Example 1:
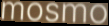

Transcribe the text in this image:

mosmo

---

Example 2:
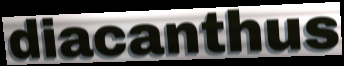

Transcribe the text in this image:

diacanthus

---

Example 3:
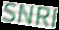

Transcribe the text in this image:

SNRI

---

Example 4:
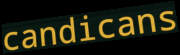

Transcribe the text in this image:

candicans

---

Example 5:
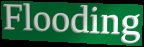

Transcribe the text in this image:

Flooding